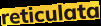
reticulata